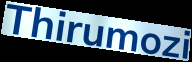
Thirumozi